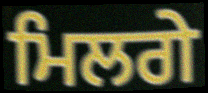
ਮਿਲਗੇ